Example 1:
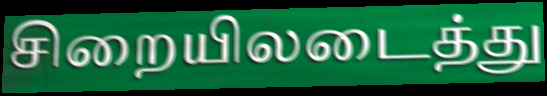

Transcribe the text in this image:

சிறையிலடைத்து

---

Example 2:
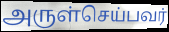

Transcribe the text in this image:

அருள்செய்பவர்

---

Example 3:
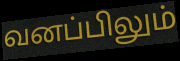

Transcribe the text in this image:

வனப்பிலும்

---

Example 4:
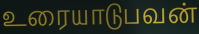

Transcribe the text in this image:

உரையாடுபவன்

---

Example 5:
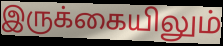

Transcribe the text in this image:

இருக்கையிலும்